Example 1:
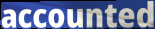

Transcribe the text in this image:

accounted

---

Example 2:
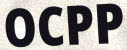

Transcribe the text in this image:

OCPP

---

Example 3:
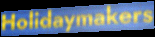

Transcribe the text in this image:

Holidaymakers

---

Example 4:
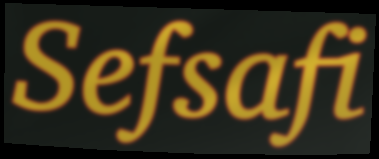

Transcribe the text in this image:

Sefsafi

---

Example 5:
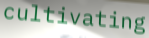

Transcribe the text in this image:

cultivating